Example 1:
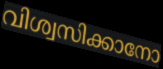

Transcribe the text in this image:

വിശ്വസിക്കാനോ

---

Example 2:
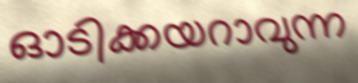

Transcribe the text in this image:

ഓടിക്കയറാവുന്ന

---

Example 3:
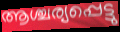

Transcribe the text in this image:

ആശ്ചര്യപ്പെട്ടു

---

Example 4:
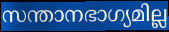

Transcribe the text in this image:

സന്താനഭാഗ്യമില്ല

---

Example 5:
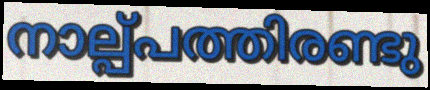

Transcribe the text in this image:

നാല്പ്പത്തിരണ്ടു